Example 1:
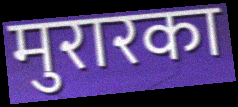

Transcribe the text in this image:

मुरारका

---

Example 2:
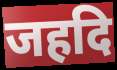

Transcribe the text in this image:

जहदि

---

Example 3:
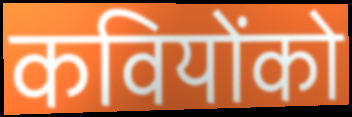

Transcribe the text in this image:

कवियोंको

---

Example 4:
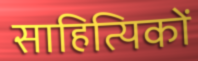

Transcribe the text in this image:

साहित्यिकों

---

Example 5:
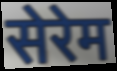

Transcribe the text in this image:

सेरेम